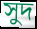
সুদ